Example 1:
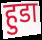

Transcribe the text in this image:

हुडा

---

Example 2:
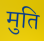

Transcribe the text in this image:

मुति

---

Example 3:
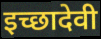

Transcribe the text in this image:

इच्छादेवी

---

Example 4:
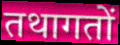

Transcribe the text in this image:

तथागतों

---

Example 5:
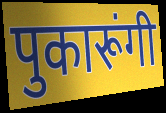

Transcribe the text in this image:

पुकारूंगी